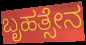
ಬೃಹತ್ಸೇನ